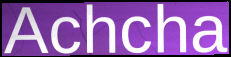
Achcha